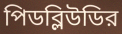
পিডব্লিউডির